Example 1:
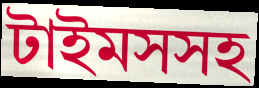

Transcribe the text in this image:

টাইমসসহ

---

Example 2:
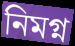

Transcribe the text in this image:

নিমগ্ন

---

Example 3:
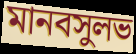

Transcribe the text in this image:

মানবসুলভ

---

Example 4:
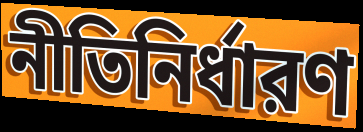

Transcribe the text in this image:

নীতিনির্ধারণ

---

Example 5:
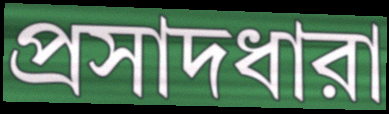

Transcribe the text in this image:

প্রসাদধারা